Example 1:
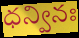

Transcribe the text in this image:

ధన్వినః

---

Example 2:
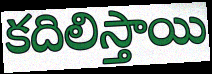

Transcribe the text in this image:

కదిలిస్తాయి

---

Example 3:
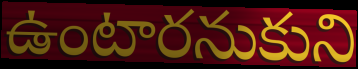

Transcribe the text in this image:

ఉంటారనుకుని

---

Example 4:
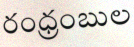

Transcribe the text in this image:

రంధ్రంబుల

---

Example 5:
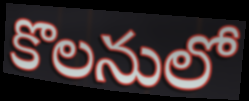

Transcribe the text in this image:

కొలనులో